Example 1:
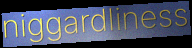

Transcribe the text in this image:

niggardliness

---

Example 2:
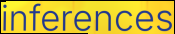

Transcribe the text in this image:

inferences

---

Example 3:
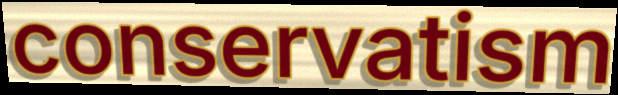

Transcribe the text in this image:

conservatism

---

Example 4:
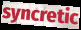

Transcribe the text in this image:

syncretic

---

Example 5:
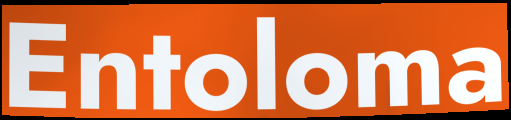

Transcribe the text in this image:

Entoloma